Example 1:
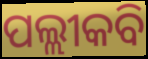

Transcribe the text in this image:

ପଲ୍ଲୀକବି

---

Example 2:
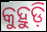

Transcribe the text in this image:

କୁହୁଡ଼ି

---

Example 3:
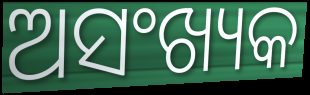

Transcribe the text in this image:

ଅସଂଖ୍ୟକ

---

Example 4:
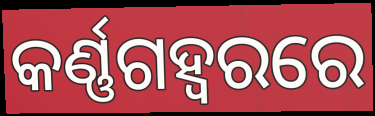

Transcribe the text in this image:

କର୍ଣ୍ଣଗହ୍ଵରରେ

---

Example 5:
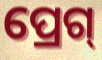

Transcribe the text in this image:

ପ୍ରେଗ୍